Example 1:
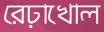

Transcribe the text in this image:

রেঢ়াখোল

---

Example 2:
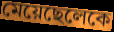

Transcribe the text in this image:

মেয়েছেলেকে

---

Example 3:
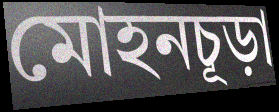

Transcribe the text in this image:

মোহনচূড়া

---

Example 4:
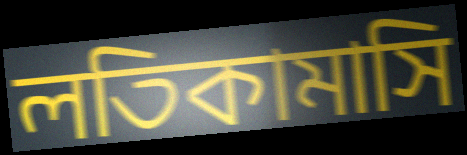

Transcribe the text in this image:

লতিকামাসি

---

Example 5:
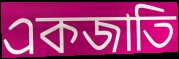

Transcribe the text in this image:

একজাতি